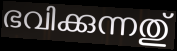
ഭവിക്കുന്നതു്